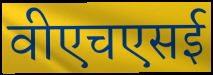
वीएचएसई